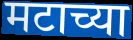
मटाच्या